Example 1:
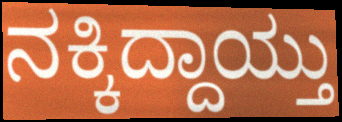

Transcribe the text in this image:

ನಕ್ಕಿದ್ದಾಯ್ತು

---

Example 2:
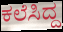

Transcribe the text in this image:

ಕಲೆಸಿದ್ದ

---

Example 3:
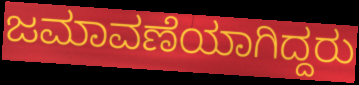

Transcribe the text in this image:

ಜಮಾವಣೆಯಾಗಿದ್ದರು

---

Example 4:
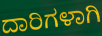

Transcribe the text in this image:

ದಾರಿಗಳಾಗಿ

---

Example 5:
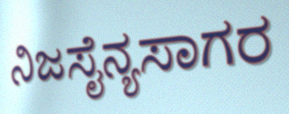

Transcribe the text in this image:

ನಿಜಸೈನ್ಯಸಾಗರ